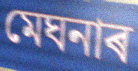
মেঘনাৰ